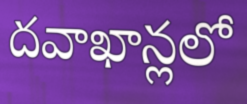
దవాఖాన్లలో